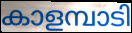
കാളമ്പാടി